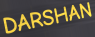
DARSHAN